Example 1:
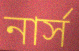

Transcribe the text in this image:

নার্স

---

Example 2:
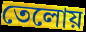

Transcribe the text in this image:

তেলোয়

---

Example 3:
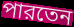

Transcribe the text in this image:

পারতেন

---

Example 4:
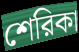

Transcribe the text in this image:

শেরিকা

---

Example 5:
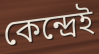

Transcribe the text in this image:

কেন্দ্রেই